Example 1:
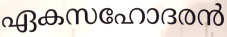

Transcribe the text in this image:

ഏകസഹോദരൻ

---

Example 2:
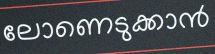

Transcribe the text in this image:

ലോണെടുക്കാൻ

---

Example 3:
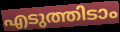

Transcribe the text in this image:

എടുത്തിടാം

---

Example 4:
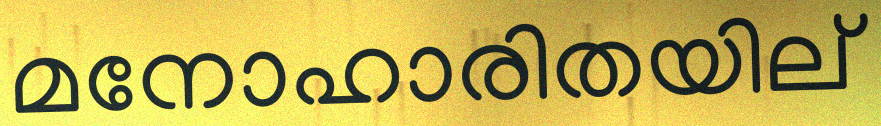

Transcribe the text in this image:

മനോഹാരിതയില്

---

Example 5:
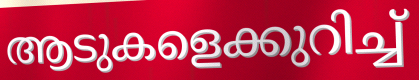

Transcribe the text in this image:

ആടുകളെക്കുറിച്ച്